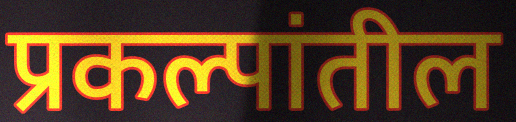
प्रकल्पांतील